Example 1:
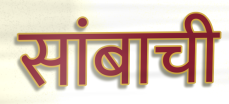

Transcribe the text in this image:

सांबाची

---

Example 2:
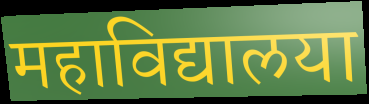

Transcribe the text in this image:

महाविद्यालया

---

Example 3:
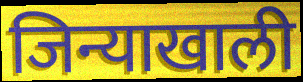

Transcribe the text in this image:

जिन्याखाली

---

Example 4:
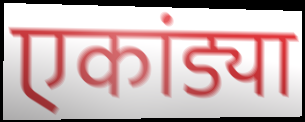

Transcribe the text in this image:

एकांड्या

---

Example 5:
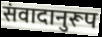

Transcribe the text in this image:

संवादानुरूप